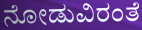
ನೋಡುವಿರಂತೆ